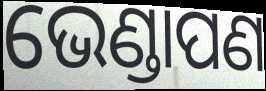
ଭେଣ୍ଡାପଣ